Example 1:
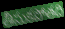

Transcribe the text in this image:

తీసుకపోతది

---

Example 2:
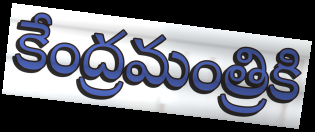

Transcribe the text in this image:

కేంద్రమంత్రికి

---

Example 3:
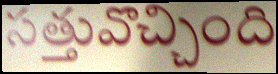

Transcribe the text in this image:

సత్తువొచ్చింది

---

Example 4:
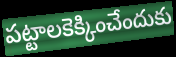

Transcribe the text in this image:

పట్టాలకెక్కించేందుకు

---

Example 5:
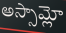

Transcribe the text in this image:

అస్సామ్లో